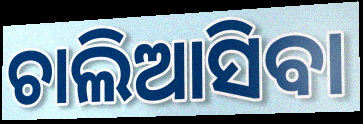
ଚାଲିଆସିବା